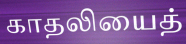
காதலியைத்